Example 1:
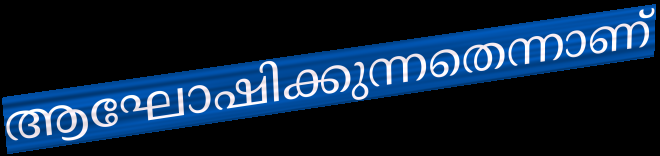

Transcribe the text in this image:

ആഘോഷിക്കുന്നതെന്നാണ്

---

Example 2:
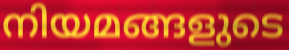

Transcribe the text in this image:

നിയമങ്ങളുടെ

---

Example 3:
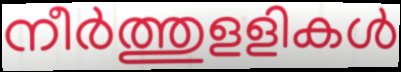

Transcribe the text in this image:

നീർത്തുളളികൾ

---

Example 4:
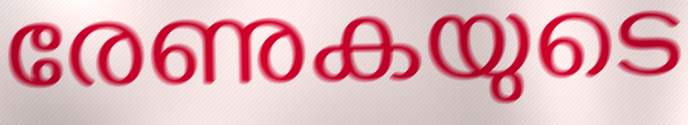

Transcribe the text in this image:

രേണുകയുടെ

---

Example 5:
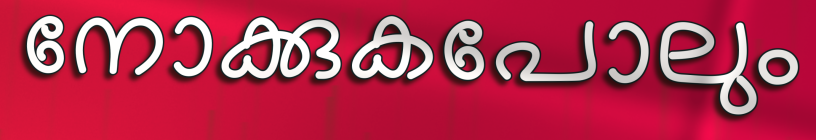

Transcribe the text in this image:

നോക്കുകപോലും